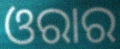
ଓରାର